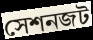
সেশনজট